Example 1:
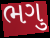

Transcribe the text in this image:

ભગુ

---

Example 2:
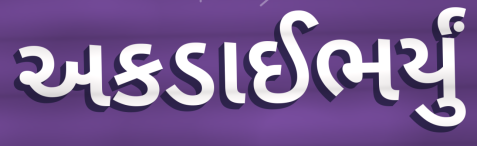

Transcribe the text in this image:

અકડાઈભર્યું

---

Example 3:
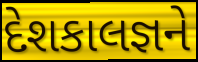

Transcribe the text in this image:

દેશકાલજ્ઞને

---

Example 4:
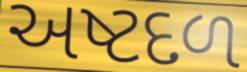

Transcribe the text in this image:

અષ્ટદળ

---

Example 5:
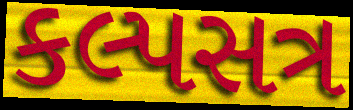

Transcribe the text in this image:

કલ્પસત્ર